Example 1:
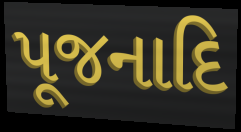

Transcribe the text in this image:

પૂજનાદિ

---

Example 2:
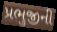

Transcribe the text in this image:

પ્રભુજીની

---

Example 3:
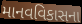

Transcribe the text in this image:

માનવવિકાસના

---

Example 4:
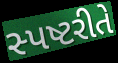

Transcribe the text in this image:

સ્પષ્ટરીતે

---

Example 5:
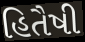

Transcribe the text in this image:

હિતૈષી